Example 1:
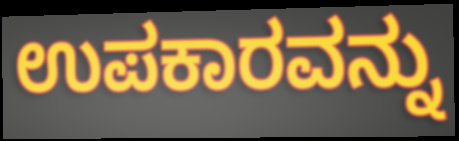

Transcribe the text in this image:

ಉಪಕಾರವನ್ನು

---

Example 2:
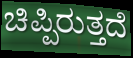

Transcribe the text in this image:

ಚಿಪ್ಪಿರುತ್ತದೆ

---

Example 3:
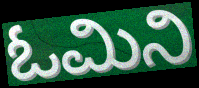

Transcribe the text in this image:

ಓಮಿನಿ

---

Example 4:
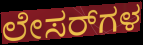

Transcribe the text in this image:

ಲೇಸರ್‌ಗಳ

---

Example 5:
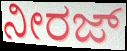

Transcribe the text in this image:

ನೀರಜ್